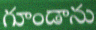
గూండాను